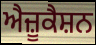
ਐਜ਼ੂਕੈਸ਼ਨ